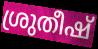
ശ്രുതീഷ്